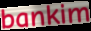
bankim